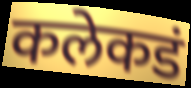
कलेकडं